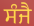
ਸੰਜੈ